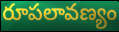
రూపలావణ్యం